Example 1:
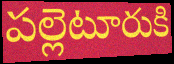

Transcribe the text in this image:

పల్లెటూరుకి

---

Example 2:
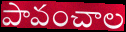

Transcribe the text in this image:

పావంచాల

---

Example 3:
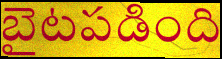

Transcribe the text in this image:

బైటపడింది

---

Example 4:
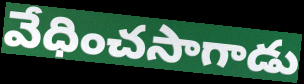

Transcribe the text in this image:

వేధించసాగాడు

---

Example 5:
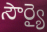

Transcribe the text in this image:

సౌర్యై